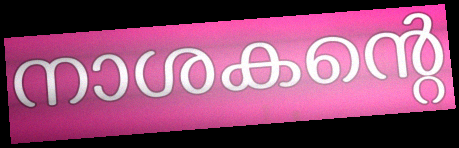
നാശകന്റെ